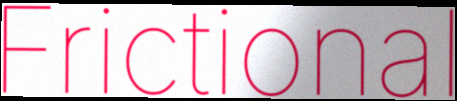
Frictional